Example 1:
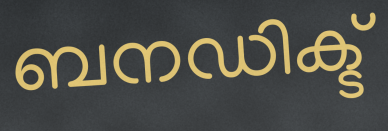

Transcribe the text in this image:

ബനഡിക്ട്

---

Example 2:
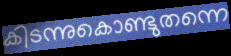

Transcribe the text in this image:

കിടന്നുകൊണ്ടുതന്നെ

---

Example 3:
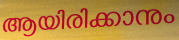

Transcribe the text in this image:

ആയിരിക്കാനും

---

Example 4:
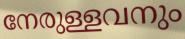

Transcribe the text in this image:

നേരുള്ളവനും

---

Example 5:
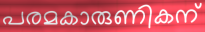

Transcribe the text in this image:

പരമകാരുണികന്